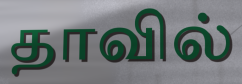
தாவில்